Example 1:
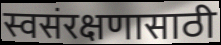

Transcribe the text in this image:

स्वसंरक्षणासाठी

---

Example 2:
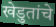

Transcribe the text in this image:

खेडुतांचे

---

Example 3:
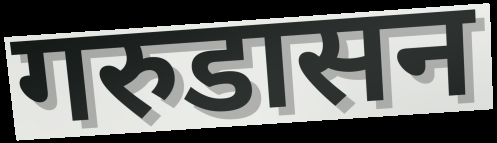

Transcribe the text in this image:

गरुडासन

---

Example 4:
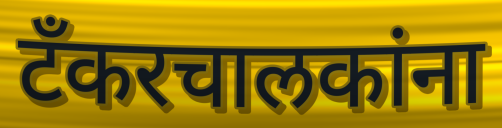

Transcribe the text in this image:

टँकरचालकांना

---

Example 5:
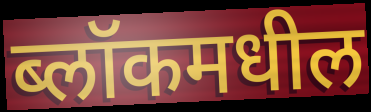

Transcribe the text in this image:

ब्लॉकमधील